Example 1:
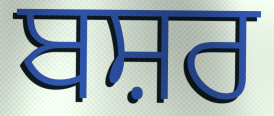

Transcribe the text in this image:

ਬਸ਼ਰ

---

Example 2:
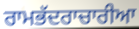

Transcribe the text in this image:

ਰਾਮਭੱਦਰਾਚਾਰੀਆ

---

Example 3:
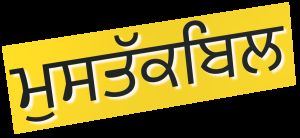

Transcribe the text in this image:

ਮੁਸਤੱਕਬਿਲ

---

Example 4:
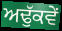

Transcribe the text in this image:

ਅਢੁੱਕਵੇਂ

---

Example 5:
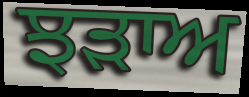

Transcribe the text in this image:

ਝੜਾਅ